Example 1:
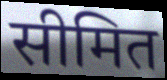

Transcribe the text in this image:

सीमित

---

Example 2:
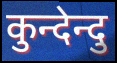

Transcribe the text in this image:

कुन्देन्दु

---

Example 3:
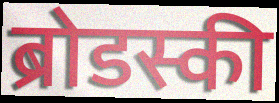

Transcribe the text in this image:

ब्रोडस्की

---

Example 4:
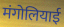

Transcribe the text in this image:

मंगोलियाई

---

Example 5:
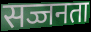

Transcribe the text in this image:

सज्जनता